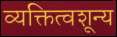
व्यक्तित्वशून्य